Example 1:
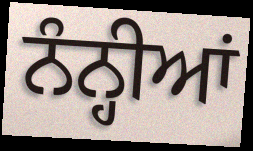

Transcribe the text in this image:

ਨੰਨ੍ਹੀਆਂ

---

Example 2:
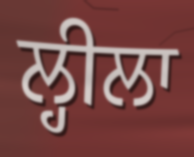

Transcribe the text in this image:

ਲ੍ਹੀਲਾ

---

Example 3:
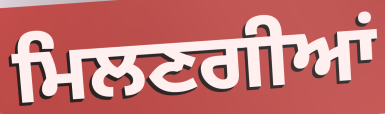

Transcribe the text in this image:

ਮਿਲਣਗੀਆਂ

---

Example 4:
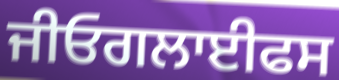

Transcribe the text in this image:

ਜੀਓਗਲਾਈਫਸ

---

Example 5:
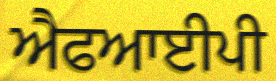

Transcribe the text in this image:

ਐਫਆਈਪੀ